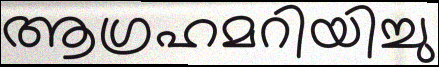
ആഗ്രഹമറിയിച്ചു